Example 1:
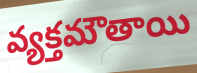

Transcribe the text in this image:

వ్యక్తమౌతాయి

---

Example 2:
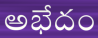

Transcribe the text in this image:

అభేదం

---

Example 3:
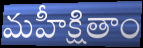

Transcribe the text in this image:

మహీక్షితాం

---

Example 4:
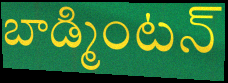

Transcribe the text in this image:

బాడ్మింటన్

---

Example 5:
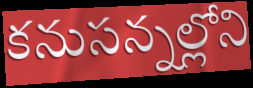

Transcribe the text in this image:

కనుసన్నల్లోని